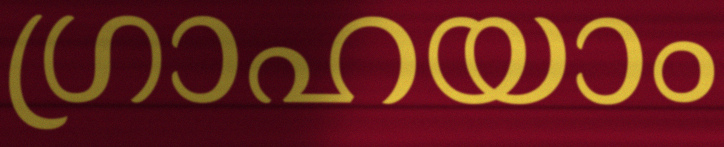
ഗ്രാഹയാം